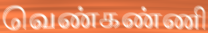
வெண்கண்ணி